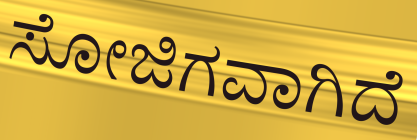
ಸೋಜಿಗವಾಗಿದೆ